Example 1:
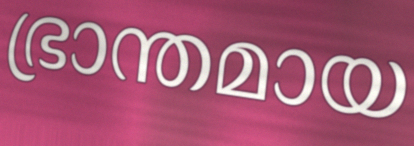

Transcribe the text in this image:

ഭ്രാന്തമായ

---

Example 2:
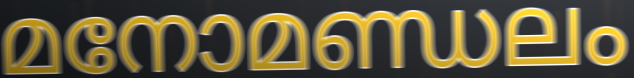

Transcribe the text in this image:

മനോമണ്ഡലം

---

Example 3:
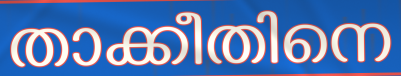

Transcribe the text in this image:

താക്കീതിനെ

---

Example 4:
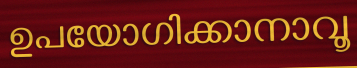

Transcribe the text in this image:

ഉപയോഗിക്കാനാവൂ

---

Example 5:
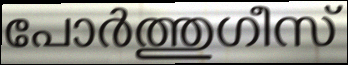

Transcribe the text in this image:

പോർത്തുഗീസ്